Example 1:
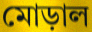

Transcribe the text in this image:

মোড়াল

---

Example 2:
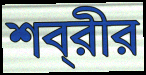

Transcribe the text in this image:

শব্‌রীর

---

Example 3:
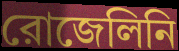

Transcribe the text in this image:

রোজেলিনি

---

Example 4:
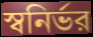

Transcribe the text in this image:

স্বনির্ভর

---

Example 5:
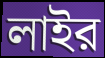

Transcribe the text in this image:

লাইর